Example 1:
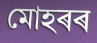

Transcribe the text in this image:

মোহৰৰ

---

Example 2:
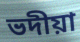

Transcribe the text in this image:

ভদীয়া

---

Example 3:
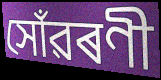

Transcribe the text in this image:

সোঁৱৰণী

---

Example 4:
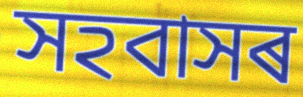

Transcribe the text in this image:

সহবাসৰ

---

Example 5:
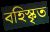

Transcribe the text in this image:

বহিস্কৃত